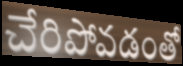
చేరిపోవడంతో